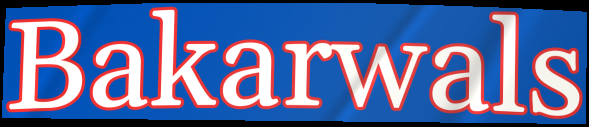
Bakarwals